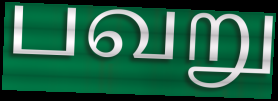
பவறு